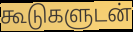
கூடுகளுடன்